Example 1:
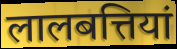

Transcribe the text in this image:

लालबत्तियां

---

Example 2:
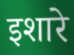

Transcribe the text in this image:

इशारे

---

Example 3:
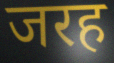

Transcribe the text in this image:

जरह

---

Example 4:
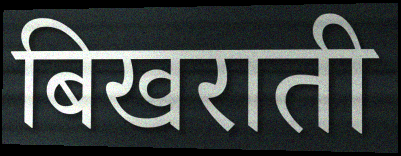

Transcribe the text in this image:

बिखराती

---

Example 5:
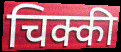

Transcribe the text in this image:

चिक्की